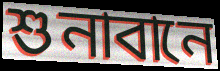
শুনাবানে